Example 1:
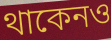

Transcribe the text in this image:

থাকেনও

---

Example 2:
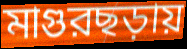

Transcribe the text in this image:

মাগুরছড়ায়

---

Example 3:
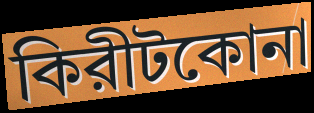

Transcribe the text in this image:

কিরীটকোনা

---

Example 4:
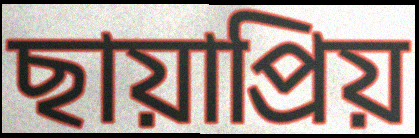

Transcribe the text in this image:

ছায়াপ্রিয়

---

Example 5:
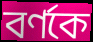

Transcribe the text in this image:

বর্ণকে